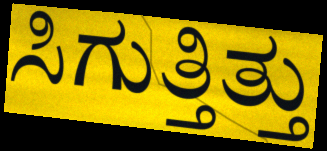
ಸಿಗುತ್ತಿತ್ತು